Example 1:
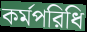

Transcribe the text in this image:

কর্মপরিধি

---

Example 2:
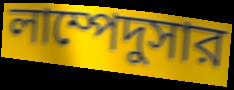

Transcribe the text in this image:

লাম্পেদুসার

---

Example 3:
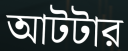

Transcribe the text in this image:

আটটার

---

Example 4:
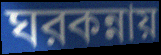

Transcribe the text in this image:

ঘরকন্নায়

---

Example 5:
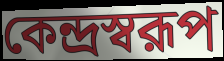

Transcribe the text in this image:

কেন্দ্রস্বরূপ